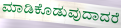
ಮಾಡಿಕೊಡುವುದಾದರೆ